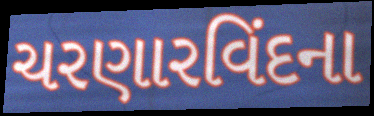
ચરણારવિંદના